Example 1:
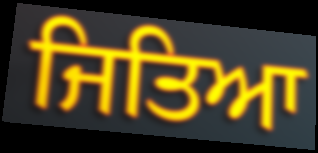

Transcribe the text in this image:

ਜਿਤਿਆ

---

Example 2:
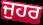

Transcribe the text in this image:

ਜੁਹਰ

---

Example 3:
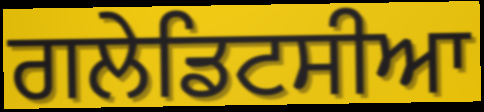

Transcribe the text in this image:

ਗਲੇਡਿਟਸੀਆ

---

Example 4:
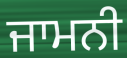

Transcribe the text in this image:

ਜਾਮਨੀ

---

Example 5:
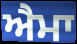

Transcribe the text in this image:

ਐਮਾ